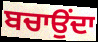
ਬਚਾਉਂਦਾ